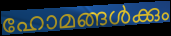
ഹോമങ്ങൾക്കും